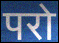
परो